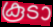
കൂടാ